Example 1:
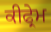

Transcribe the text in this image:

ਕੀਫ੍ਰੇਮ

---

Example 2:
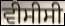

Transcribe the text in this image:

ਵੀਸੀਸੀ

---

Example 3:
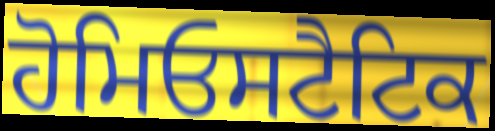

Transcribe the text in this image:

ਹੋਮਿਓਸਟੈਟਿਕ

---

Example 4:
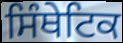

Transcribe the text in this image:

ਸਿੰਥੇਟਿਕ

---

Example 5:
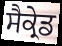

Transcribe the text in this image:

ਸੈਕ੍ਰੇਡ